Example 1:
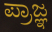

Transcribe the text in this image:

ಪ್ರಾಜ್ಞ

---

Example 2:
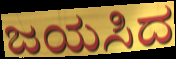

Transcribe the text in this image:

ಜಯಸಿದ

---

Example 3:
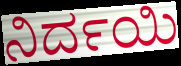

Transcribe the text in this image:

ನಿರ್ದಯಿ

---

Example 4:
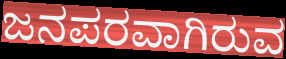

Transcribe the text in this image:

ಜನಪರವಾಗಿರುವ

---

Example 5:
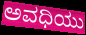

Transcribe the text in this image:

ಅವಧಿಯು